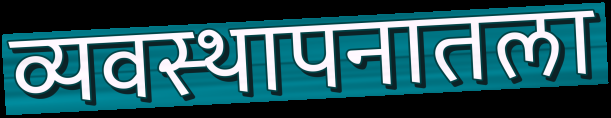
व्यवस्थापनातला